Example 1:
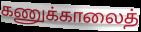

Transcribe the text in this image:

கணுக்காலைத்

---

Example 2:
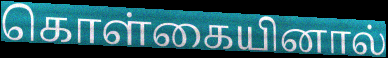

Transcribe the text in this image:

கொள்கையினால்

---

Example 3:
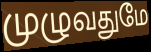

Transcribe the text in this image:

முழுவதுமே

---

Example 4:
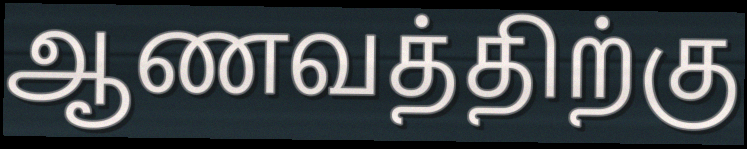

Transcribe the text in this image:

ஆணவத்திற்கு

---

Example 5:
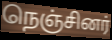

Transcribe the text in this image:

நெஞ்சினர்